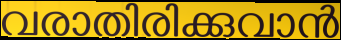
വരാതിരിക്കുവാൻ